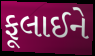
ફૂલાઈને